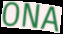
ONA